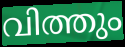
വിത്തും